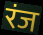
रंज